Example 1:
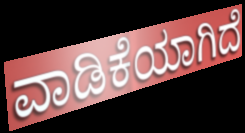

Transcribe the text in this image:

ವಾಡಿಕೆಯಾಗಿದೆ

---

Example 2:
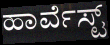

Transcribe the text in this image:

ಹಾರ್ವೆಸ್ಟ್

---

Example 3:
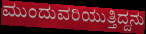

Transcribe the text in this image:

ಮುಂದುವರಿಯುತ್ತಿದ್ದನು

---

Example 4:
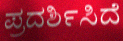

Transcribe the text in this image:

ಪ್ರದರ್ಶಿಸಿದೆ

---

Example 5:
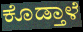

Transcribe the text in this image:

ಕೊಡ್ತಾಳೆ